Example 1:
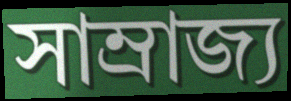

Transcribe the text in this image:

সাম্রাজ্য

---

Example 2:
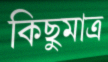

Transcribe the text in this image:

কিছুমাত্র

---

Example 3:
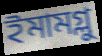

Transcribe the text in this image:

ইমামগ্লু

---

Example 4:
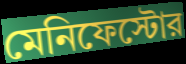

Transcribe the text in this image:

মেনিফেস্টোর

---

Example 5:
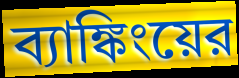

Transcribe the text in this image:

ব্যাঙ্কিংয়ের